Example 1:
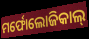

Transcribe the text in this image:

ମର୍ଫୋଲୋଜିକାଲ୍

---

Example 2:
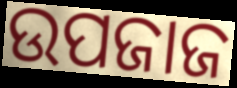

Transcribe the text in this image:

ଉପଜାଜ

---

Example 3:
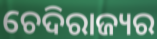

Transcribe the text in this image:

ଚେଦିରାଜ୍ୟର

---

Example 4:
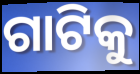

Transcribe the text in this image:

ଗାଟିକୁ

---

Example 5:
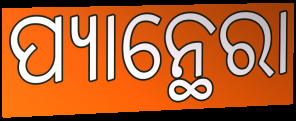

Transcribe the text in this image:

ପ୍ୟାନ୍ଥେରା